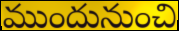
ముందునుంచి